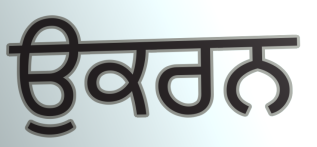
ਉਕਰਨ